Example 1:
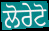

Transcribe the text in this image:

ਲੋਰੇਟੋ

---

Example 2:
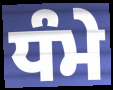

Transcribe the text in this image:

ਧੰਮੇ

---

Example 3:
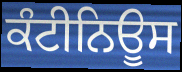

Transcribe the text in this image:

ਕੰਟੀਨਿਊਸ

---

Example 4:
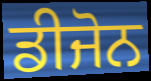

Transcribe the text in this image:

ਡੀਜੋਨ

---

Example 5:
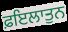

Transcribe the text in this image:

ਫ਼ਇਲਾਤੁਨ